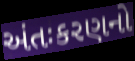
અંતઃકરણનો